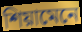
শিয়ামেনে